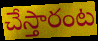
చేస్తారంట